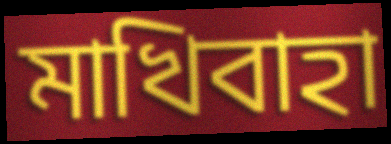
মাখিবাহা